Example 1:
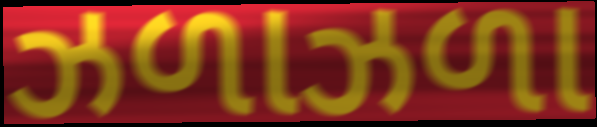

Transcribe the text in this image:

ઝળાઝળા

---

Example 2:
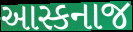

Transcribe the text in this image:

આસ્કનાજ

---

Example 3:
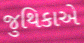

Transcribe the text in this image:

જુથિકાએ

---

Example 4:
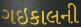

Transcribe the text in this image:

ગઇકાલની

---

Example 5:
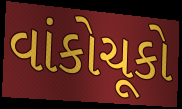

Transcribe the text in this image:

વાંકોચૂકો